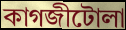
কাগজীটোলা